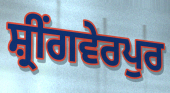
ਸ਼੍ਰੀਂਗਵੇਰਪੁਰ